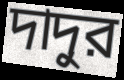
দাদুর